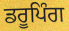
ਡਰੂਪਿੰਗ